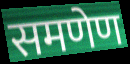
समणेण